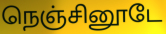
நெஞ்சினூடே